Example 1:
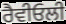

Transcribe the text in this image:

ਰੈਵੀਓਲੀ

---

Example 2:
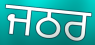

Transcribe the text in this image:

ਜਠਰ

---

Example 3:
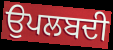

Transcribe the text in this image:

ਉਪਲਬਦੀ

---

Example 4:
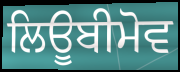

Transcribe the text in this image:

ਲਿਊਬੀਮੋਵ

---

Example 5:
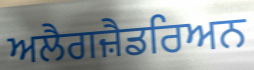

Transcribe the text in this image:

ਅਲੈਗਜ਼ੈਡਰਿਅਨ